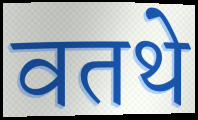
वतथे